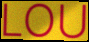
LOU